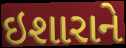
ઇશારાને